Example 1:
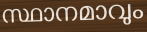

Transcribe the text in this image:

സ്ഥാനമാവും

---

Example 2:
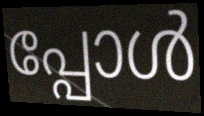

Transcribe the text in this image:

പ്പോൾ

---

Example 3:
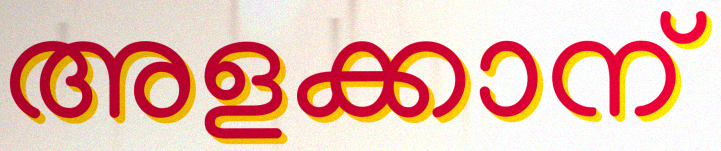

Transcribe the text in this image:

അളക്കാന്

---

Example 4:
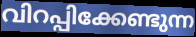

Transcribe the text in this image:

വിറപ്പിക്കേണ്ടുന്ന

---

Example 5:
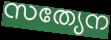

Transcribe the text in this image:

സത്യേന